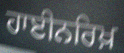
ਹਾਈਨਰਿਖ਼